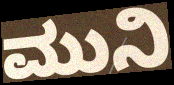
ಮುನಿ